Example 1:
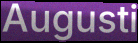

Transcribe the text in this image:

Augusti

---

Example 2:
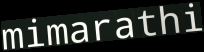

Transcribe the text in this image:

mimarathi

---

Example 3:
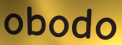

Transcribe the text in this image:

obodo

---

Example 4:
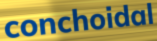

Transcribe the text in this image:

conchoidal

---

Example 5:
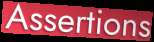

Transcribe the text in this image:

Assertions